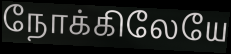
நோக்கிலேயே